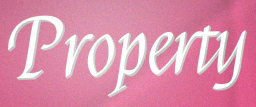
Property